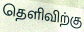
தெளிவிற்கு